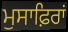
ਮੁਸਾਫ਼ਿਰਾਂ